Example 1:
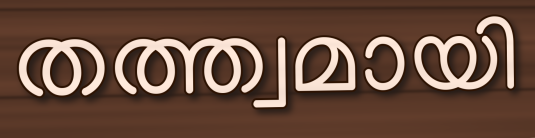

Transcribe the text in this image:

തത്ത്വമായി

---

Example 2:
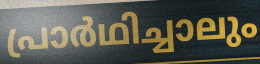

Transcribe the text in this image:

പ്രാർഥിച്ചാലും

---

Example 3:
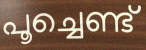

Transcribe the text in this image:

പൂച്ചെണ്ട്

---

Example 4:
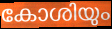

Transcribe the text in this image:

കോശിയും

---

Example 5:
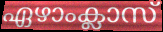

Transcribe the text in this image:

ഏഴാംക്ലാസ്